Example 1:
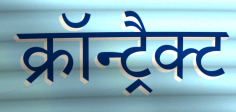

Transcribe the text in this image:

क्रॉन्ट्रैक्ट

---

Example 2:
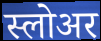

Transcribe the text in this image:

स्लोअर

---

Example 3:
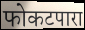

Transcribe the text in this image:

फोकटपारा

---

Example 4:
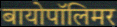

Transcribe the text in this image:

बायोपॉलिमर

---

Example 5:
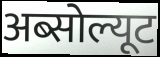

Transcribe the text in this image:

अब्सोल्यूट